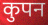
कुपन